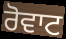
ਰੋਵਾਟ